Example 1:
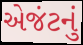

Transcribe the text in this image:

એજંટનું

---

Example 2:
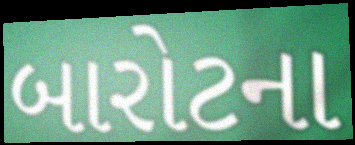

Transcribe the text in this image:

બારોટના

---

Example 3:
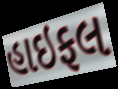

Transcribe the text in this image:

હાઇફલ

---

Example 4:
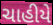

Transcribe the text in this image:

ચાહીયે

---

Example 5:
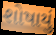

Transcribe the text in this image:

શોષાયું